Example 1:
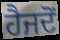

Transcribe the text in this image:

ਹੈਜਦੋਂ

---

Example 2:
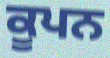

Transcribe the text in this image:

ਕੂਪਨ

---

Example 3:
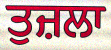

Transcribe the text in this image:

ਤੁਜ਼ਲਾ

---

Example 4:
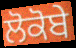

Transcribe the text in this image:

ਲੋਕੋਬੇ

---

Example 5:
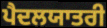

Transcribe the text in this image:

ਪੈਦਲਯਾਤਰੀ